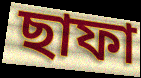
ছাফা